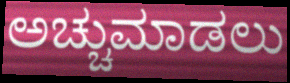
ಅಚ್ಚುಮಾಡಲು